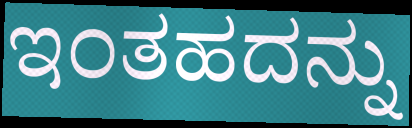
ಇಂತಹದನ್ನು